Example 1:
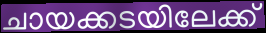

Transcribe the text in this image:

ചായക്കടയിലേക്ക്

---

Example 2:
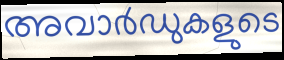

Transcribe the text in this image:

അവാർഡുകളുടെ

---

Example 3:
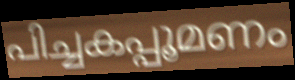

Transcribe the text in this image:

പിച്ചകപ്പൂമണം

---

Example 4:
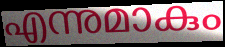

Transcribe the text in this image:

എന്നുമാകും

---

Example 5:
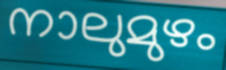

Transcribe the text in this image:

നാലുമുഴം